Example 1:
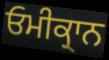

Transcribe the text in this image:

ਓਮੀਕ੍ਰਾਨ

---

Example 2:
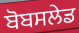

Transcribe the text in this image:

ਬੋਬਸਲੇਡ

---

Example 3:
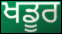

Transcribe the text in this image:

ਖਡੂਰ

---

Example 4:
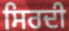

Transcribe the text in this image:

ਸਿਰਦੀ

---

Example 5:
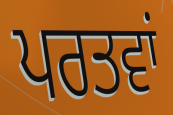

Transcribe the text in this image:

ਪਰਤਵਾਂ